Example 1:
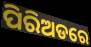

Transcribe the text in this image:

ପିରିଅଡରେ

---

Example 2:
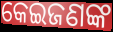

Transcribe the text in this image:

କେଇଜଣଙ୍କ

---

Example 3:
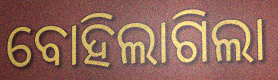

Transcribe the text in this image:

ବୋହିଲାଗିଲା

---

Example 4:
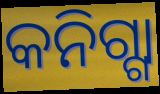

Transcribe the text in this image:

କନିଗ୍ଗା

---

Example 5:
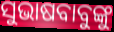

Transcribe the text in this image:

ସୁଭାଷବାବୁଙ୍କୁ